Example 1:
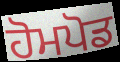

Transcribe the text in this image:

ਹੋਮਪੋਡ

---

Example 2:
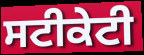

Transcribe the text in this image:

ਸਟੀਕੇਟੀ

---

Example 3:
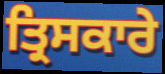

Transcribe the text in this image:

ਤ੍ਰਿਸਕਾਰੇ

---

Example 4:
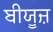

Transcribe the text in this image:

ਬੀਯੂਜ਼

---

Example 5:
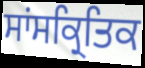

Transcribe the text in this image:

ਸਾਂਸਕ੍ਰਿਤਿਕ